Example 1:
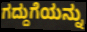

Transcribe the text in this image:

ಗದ್ದುಗೆಯನ್ನು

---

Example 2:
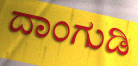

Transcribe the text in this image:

ದಾಂಗುಡಿ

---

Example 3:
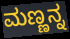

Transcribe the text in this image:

ಮಣ್ಣನ್ನ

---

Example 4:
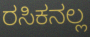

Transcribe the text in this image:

ರಸಿಕನಲ್ಲ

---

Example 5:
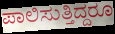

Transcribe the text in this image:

ಪಾಲಿಸುತ್ತಿದ್ದರೂ